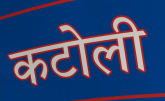
कटोली